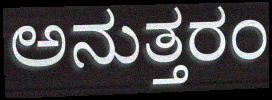
ಅನುತ್ತರಂ